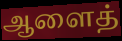
ஆளைத்